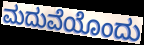
ಮದುವೆಯೊಂದು